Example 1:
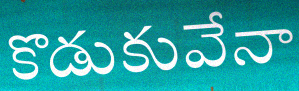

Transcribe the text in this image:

కొడుకువేనా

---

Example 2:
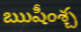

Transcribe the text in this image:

ఋషీంశ్చ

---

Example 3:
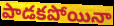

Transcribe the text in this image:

పాడకపోయినా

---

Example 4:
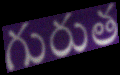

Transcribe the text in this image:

గురుత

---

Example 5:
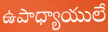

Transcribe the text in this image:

ఉపాధ్యాయులే